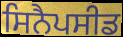
ਸਿਨੈਪਸੀਡ